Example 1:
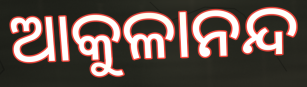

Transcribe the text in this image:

ଆକୁଳାନନ୍ଦ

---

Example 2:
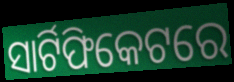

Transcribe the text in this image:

ସାର୍ଟିଫିକେଟରେ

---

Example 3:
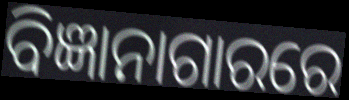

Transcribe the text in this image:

ବିଜ୍ଞାନାଗାରରେ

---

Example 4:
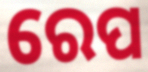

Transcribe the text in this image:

ରେପ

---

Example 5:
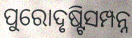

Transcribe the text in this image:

ପୁରୋଦୃଷ୍ଟିସମ୍ପନ୍ନ